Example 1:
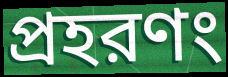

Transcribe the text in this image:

প্রহরণং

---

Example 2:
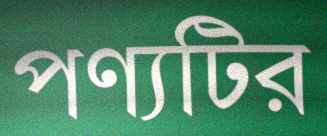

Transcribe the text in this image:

পণ্যটির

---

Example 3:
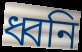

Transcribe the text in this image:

ধ্বনি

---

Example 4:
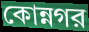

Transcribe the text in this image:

কোন্নগর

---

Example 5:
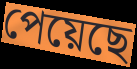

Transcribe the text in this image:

পেয়েছে